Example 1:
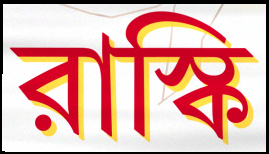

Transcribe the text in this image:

রাস্কি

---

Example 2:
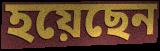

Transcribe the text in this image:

হয়েছেন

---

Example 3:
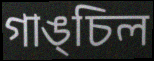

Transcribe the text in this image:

গাঙ্‌চিল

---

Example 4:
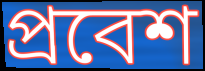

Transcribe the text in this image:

প্রবেশ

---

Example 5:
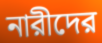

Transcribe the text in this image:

নারীদের